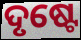
ଦୃଷ୍ଟେ